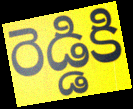
రెడ్డికి